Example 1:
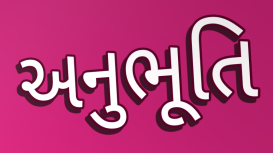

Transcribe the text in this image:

અનુભૂતિ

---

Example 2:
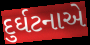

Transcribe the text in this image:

દુર્ઘટનાએ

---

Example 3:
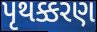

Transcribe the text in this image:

પૃથક્કરણ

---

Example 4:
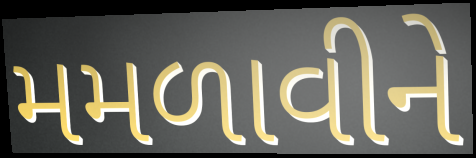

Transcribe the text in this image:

મમળાવીને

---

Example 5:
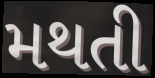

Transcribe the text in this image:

મથતી